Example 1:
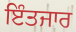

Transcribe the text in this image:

ਇੰਤਜਾਰ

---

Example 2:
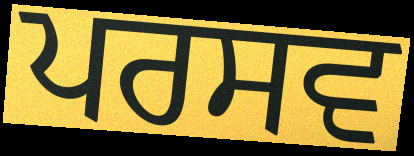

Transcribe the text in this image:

ਪਰਸਵ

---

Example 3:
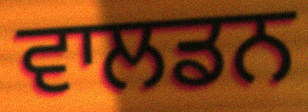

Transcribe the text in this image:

ਵਾਲਡਨ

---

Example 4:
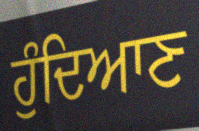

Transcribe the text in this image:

ਹੁੰਦਿਆਣ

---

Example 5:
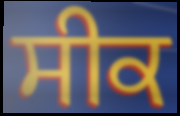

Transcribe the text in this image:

ਸੀਕ